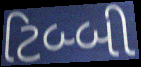
ટિબ્બી